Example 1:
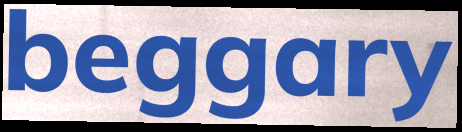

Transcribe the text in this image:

beggary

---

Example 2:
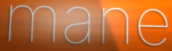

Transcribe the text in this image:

mane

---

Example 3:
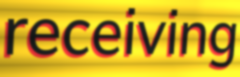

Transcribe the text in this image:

receiving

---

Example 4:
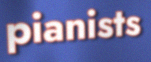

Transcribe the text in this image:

pianists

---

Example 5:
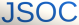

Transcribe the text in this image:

JSOC